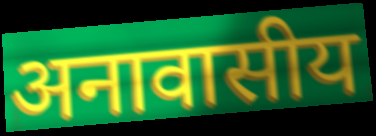
अनावासीय